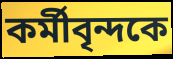
কর্মীবৃন্দকে